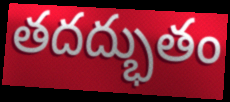
తదద్భుతం